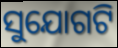
ସୁଯୋଗଟି